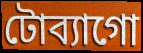
টোব্যাগো